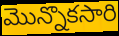
మొన్నొకసారి